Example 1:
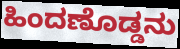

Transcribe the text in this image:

ಹಿಂದಣೊಡ್ಡನು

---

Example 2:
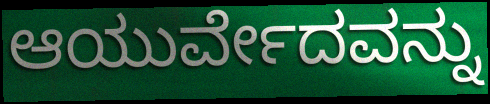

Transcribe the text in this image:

ಆಯುರ್ವೇದವನ್ನು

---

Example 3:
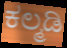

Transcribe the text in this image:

ಕಲ್ಮಡಿ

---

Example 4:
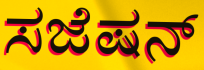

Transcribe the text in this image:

ಸಜೆಷನ್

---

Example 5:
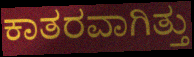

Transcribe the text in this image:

ಕಾತರವಾಗಿತ್ತು